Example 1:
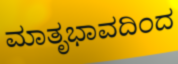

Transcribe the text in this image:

ಮಾತೃಭಾವದಿಂದ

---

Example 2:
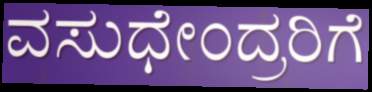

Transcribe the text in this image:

ವಸುಧೇಂದ್ರರಿಗೆ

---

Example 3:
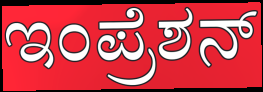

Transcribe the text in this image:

ಇಂಪ್ರೆಶನ್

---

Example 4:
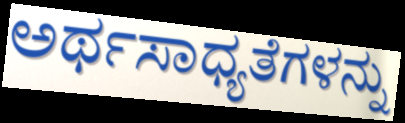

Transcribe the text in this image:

ಅರ್ಥಸಾಧ್ಯತೆಗಳನ್ನು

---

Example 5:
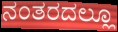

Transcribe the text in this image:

ನಂತರದಲ್ಲೂ